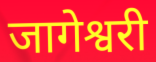
जागेश्वरी